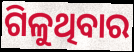
ଗିଳୁଥିବାର